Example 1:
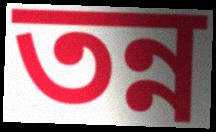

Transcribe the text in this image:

তন্ন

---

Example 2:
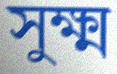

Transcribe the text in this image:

সুক্ষ্ম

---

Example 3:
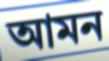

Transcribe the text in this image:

আমন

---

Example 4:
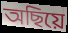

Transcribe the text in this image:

অছিয়ে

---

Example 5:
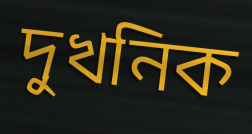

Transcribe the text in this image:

দুখনিক